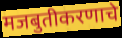
मजबुतीकरणाचे